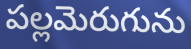
పల్లమెరుగును